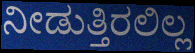
ನೀಡುತ್ತಿರಲಿಲ್ಲ